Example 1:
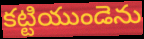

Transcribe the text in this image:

కట్టియుండెను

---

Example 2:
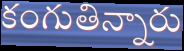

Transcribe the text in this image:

కంగుతిన్నారు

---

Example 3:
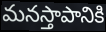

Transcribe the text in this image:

మనస్తాపానికి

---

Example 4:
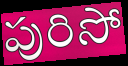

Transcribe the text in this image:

పురిసో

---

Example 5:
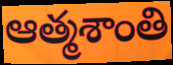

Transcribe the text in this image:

ఆత్మశాంతి